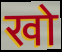
खो